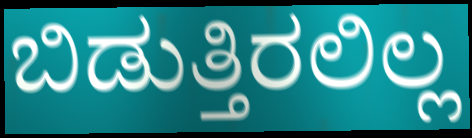
ಬಿಡುತ್ತಿರಲಿಲ್ಲ